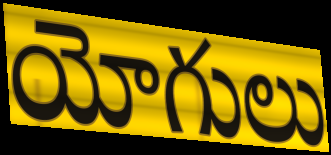
యోగులు